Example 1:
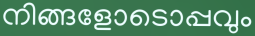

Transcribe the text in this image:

നിങ്ങളോടൊപ്പവും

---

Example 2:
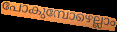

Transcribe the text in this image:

പോകുമ്പോഴെല്ലാം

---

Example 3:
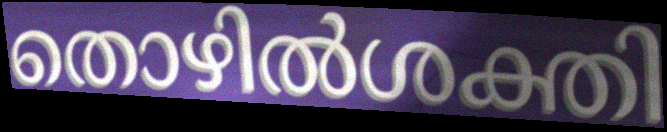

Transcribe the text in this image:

തൊഴിൽശക്തി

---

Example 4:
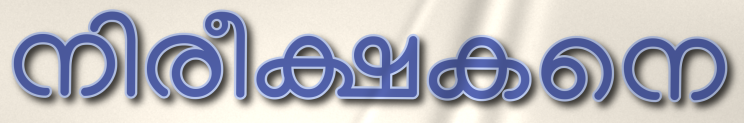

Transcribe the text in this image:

നിരീക്ഷകനെ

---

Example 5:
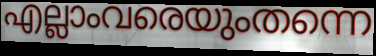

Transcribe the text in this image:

എല്ലാംവരെയുംതന്നെ